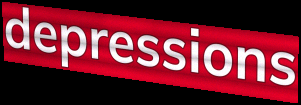
depressions